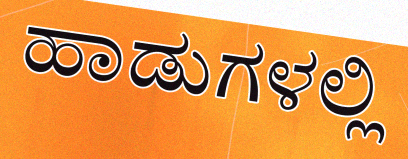
ಹಾಡುಗಳಲ್ಲಿ